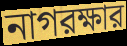
নাগরক্ষার